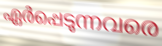
ഏർപ്പെടുന്നവരെ